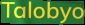
Talobyo